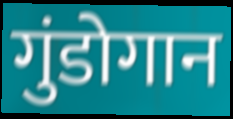
गुंडोगान